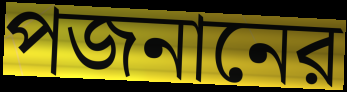
পজনানের